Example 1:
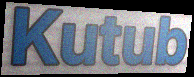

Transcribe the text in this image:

Kutub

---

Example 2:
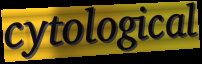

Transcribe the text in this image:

cytological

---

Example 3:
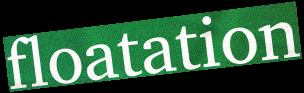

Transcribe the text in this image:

floatation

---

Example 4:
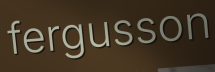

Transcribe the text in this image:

fergusson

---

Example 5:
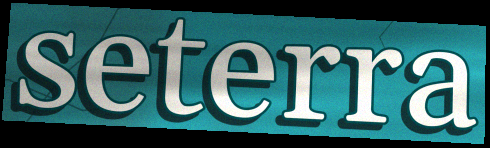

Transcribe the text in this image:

seterra